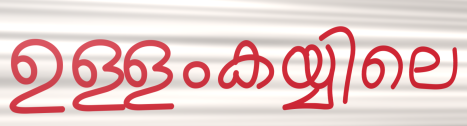
ഉള്ളംകയ്യിലെ